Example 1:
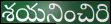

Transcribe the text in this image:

శయనించిరి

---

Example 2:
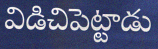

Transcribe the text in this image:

విడిచిపెట్టాడు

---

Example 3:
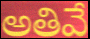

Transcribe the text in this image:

అతివే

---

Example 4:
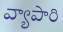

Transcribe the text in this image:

వ్యాపారి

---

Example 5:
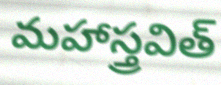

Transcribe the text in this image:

మహాస్త్రవిత్